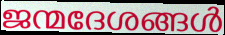
ജന്മദേശങ്ങൾ